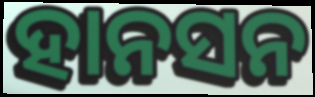
ହାନସନ